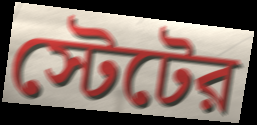
স্টেটের